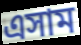
এসাম